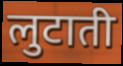
लुटाती